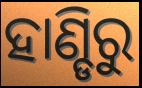
ହାଣ୍ଡିରୁ